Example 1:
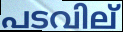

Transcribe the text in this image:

പടവില്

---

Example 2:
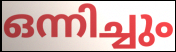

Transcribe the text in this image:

ഒന്നിച്ചും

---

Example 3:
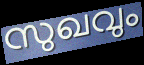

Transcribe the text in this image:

സുഖവും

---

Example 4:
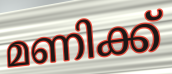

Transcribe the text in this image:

മണിക്ക്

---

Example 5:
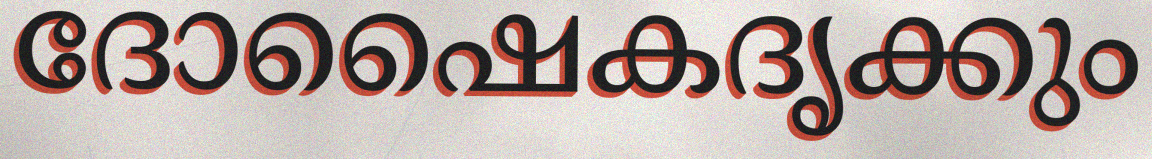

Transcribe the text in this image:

ദോഷൈകദൃക്കും